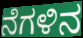
ನೆಗಳಿನ